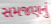
સમજણનું